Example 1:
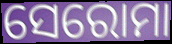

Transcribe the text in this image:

ସେରୋମା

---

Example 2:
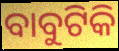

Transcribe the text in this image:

ବାବୁଟିକି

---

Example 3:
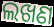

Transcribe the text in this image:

ଲଖଣ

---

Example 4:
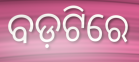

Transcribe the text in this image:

ବଡ଼ଟିରେ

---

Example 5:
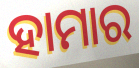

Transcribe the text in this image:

ହାମାର